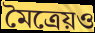
মৈত্রেয়ও